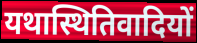
यथास्थितिवादियों